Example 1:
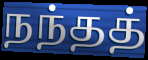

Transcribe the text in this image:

நந்தத்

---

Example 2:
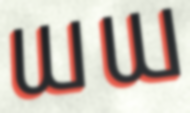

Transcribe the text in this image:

யய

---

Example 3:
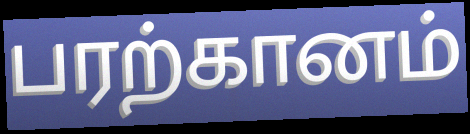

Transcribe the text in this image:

பரற்கானம்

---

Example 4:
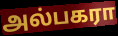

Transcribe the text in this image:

அல்பகரா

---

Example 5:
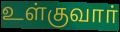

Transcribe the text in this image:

உள்குவார்